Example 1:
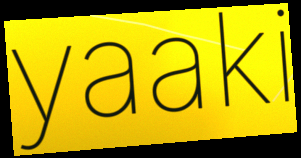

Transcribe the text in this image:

yaaki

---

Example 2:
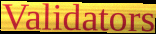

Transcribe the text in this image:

Validators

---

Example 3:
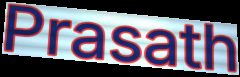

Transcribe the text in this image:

Prasath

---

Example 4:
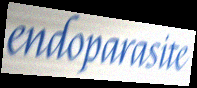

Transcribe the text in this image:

endoparasite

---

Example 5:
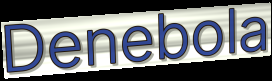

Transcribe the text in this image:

Denebola